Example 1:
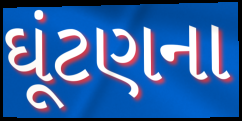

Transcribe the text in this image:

ઘૂંટણના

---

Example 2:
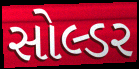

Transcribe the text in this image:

સોલ્ડર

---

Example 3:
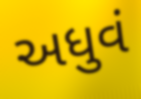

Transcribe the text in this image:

અધુવં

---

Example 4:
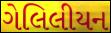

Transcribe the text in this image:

ગેલિલીયન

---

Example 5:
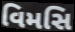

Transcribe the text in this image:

વિમસિ